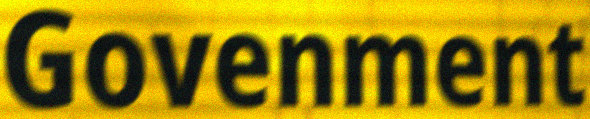
Govenment